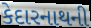
કેદારનાથની